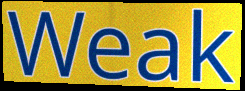
Weak